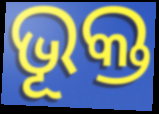
ଭୂକ୍ତ